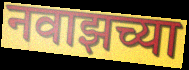
नवाझच्या